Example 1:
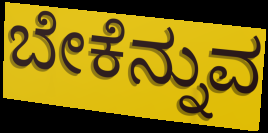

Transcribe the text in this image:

ಬೇಕೆನ್ನುವ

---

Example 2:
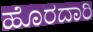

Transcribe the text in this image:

ಹೊರದಾರಿ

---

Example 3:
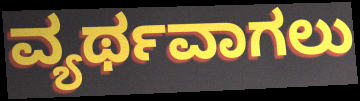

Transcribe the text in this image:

ವ್ಯರ್ಥವಾಗಲು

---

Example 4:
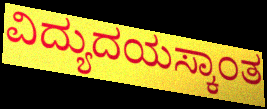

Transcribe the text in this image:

ವಿದ್ಯುದಯಸ್ಕಾಂತ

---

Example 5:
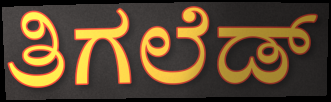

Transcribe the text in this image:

ತಿಗಲೆಡ್